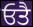
ਓਤੈ